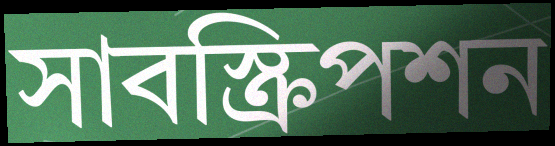
সাবস্ক্রিপশন